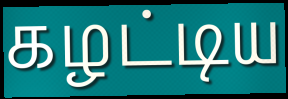
கழட்டிய